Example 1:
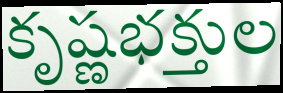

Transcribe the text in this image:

కృష్ణభక్తుల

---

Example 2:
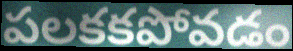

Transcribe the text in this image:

పలకకపోవడం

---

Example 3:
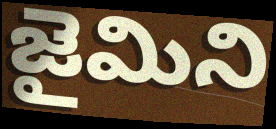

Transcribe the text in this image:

జైమిని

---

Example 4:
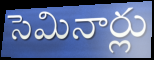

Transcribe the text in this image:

సెమినార్లు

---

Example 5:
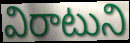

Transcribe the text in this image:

విరాటుని